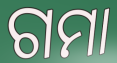
ଗମା